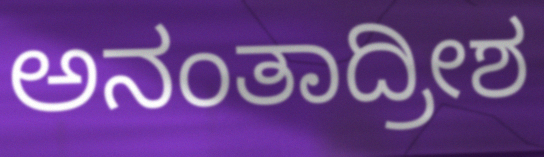
ಅನಂತಾದ್ರೀಶ